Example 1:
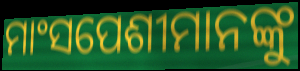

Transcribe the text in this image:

ମାଂସପେଶୀମାନଙ୍କୁ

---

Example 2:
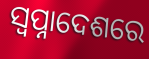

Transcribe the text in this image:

ସ୍ଵପ୍ନାଦେଶରେ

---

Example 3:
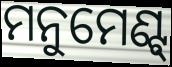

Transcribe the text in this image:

ମନୁମେଣ୍ଟ୍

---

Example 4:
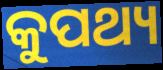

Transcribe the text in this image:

କୁପଥ୍ୟ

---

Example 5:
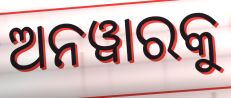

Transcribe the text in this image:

ଅନୱାରକୁ